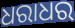
ଧରାଧର